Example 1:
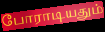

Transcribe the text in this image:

போராடியதும்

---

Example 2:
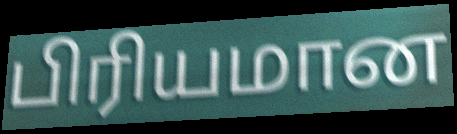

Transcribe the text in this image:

பிரியமான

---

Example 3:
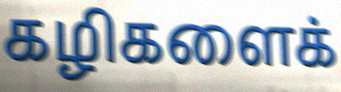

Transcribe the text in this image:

கழிகளைக்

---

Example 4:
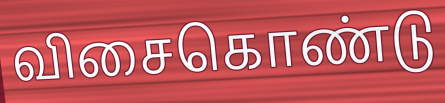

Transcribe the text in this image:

விசைகொண்டு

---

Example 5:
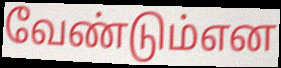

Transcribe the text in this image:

வேண்டும்என